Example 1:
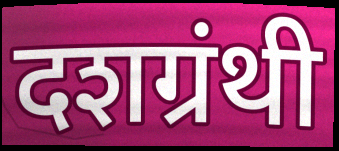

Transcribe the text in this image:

दशग्रंथी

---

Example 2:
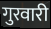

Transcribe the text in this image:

गुरवारी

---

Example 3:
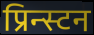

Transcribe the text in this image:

प्रिन्स्टन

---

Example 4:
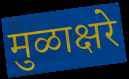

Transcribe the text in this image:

मुळाक्षरे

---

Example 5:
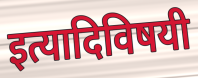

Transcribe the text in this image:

इत्यादिविषयी